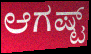
ಆಗಷ್ಟ್